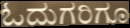
ಓದುಗರಿಗೂ